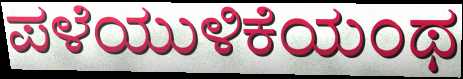
ಪಳೆಯುಳಿಕೆಯಂಥ